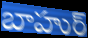
బాహుర్